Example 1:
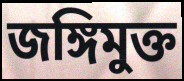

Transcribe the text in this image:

জঙ্গিমুক্ত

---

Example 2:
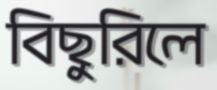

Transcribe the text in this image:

বিছুরিলে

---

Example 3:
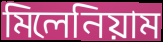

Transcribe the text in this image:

মিলেনিয়াম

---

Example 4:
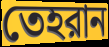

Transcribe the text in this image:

তেহরান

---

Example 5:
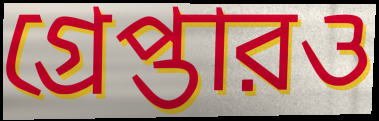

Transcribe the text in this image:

গ্রেপ্তারও